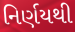
નિર્ણયથી